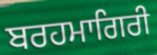
ਬਰਹਮਾਗਿਰੀ